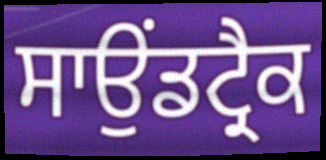
ਸਾਉਂਡਟ੍ਰੈਕ